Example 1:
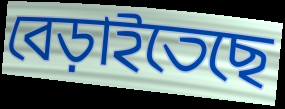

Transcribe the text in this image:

বেড়াইতেছে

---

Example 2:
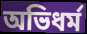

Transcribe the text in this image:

অভিধর্ম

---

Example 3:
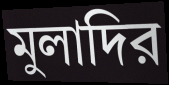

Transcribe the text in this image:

মুলাদির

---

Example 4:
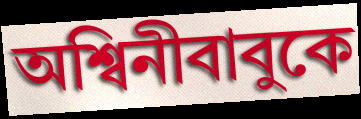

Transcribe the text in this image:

অশ্বিনীবাবুকে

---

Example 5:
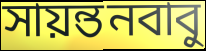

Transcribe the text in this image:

সায়ন্তনবাবু